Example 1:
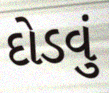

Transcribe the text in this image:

દોડવું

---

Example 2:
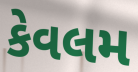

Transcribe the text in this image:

કેવલમ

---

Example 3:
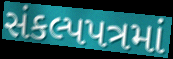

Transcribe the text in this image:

સંકલ્પપત્રમાં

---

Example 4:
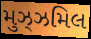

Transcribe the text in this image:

મુઝ્ઝમિલ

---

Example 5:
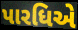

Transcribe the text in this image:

પારધિએ